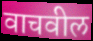
वाचवील